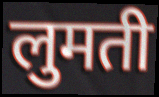
लुमती